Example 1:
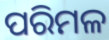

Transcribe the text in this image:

ପରିମଳ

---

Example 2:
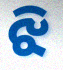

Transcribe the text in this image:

ଝି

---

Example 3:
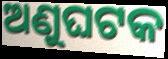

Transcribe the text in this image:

ଅଣୁଘଟକ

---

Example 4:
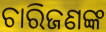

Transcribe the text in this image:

ଚାରିଜଣଙ୍କ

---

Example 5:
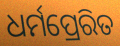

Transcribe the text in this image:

ଧର୍ମପ୍ରେରିତ